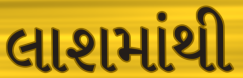
લાશમાંથી